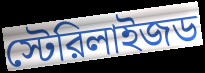
স্টেরিলাইজড